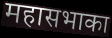
महासभाका